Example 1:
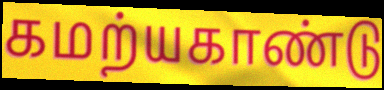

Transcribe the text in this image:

கமற்யகாண்டு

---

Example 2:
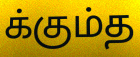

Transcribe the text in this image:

க்கும்த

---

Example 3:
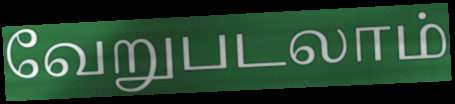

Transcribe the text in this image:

வேறுபடலாம்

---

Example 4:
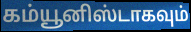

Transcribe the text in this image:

கம்யூனிஸ்டாகவும்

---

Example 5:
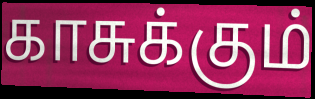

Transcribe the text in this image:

காசுக்கும்